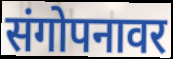
संगोपनावर